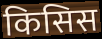
किसिस